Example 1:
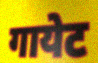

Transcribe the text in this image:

गायेट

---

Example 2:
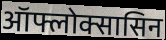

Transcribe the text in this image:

ऑफ्लोक्सासिन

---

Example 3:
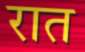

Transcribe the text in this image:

रात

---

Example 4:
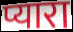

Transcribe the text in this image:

प्यारा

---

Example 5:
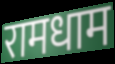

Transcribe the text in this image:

रामधाम